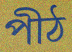
পীঠ